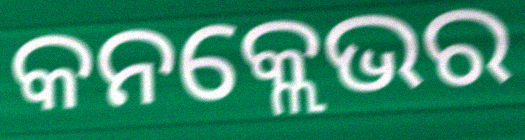
କନକ୍ଲେଭର